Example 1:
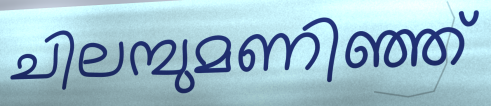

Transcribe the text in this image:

ചിലമ്പുമണിഞ്ഞ്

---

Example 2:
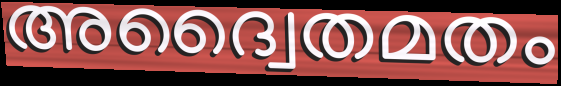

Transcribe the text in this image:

അദ്വൈതമതം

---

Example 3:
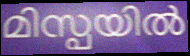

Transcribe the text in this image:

മിസ്പയിൽ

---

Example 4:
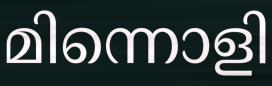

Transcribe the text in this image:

മിന്നൊളി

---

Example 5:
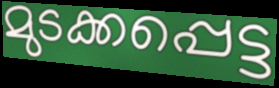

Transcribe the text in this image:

മുടക്കപ്പെട്ട